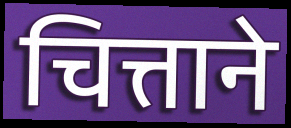
चित्ताने